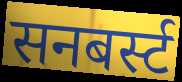
सनबर्स्ट